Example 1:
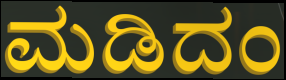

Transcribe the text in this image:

ಮಡಿದಂ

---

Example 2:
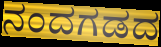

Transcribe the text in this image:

ನಂದಗಡದ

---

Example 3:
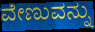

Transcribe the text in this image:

ವೇಣುವನ್ನು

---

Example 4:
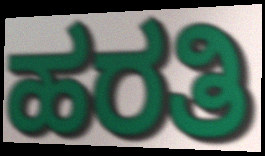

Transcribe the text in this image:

ಹರತಿ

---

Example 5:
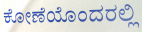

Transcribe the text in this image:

ಕೋಣೆಯೊಂದರಲ್ಲಿ